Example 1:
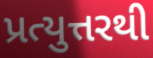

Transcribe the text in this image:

પ્રત્યુત્તરથી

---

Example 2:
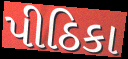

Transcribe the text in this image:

પીઠિકા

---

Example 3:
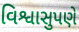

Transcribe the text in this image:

વિશ્વાસુપણે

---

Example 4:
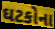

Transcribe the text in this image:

ઘટકોના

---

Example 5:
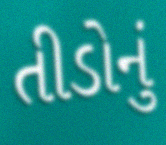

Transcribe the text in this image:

તીડોનું